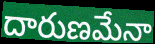
దారుణమేనా